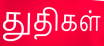
துதிகள்